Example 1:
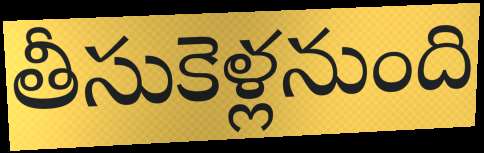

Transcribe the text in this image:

తీసుకెళ్లనుంది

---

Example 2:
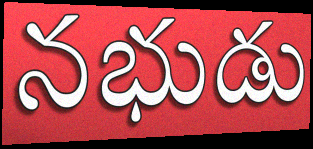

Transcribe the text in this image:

నభుడు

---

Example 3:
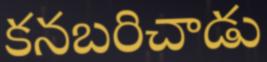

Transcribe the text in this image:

కనబరిచాడు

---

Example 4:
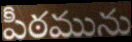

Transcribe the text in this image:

పీఠమును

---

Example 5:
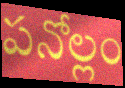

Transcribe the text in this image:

పనోల్లం